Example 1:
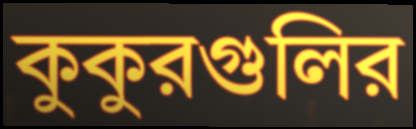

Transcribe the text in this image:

কুকুরগুলির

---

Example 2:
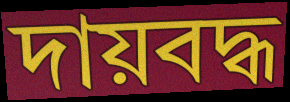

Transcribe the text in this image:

দায়বদ্ধ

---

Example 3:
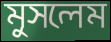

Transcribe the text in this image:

মুসলেম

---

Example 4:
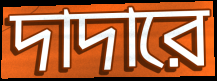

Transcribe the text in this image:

দাদারে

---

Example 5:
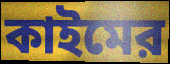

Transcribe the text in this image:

কাইমের